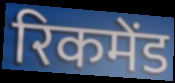
रिकमेंड